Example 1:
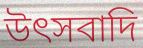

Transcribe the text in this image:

উৎসবাদি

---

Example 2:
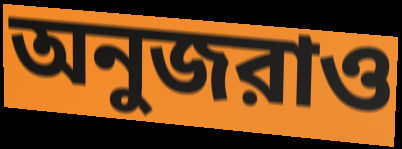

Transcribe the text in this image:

অনুজরাও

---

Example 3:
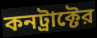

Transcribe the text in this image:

কনট্রাক্টের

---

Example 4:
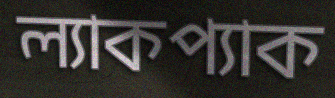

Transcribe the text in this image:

ল্যাকপ্যাক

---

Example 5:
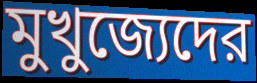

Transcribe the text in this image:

মুখুজ্যেদের